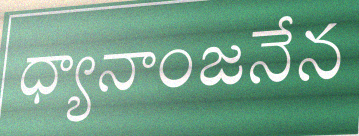
ధ్యానాంజనేన